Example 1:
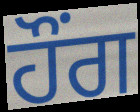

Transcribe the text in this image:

ਹੌਂਗ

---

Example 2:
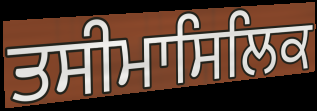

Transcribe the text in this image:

ਤਸੀਮਾਸਿਲਿਕ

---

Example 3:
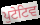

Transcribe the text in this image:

ਪੁਟੇਟਿਵ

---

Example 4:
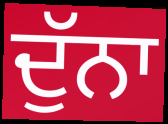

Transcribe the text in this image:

ਦੁੱਨਾ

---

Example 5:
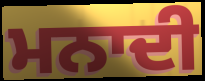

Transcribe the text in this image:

ਮਨਾਦੀ